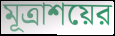
মূত্রাশয়ের